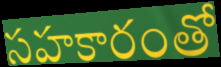
సహకారంతో